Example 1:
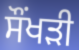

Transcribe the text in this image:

ਸੌਂਖੜੀ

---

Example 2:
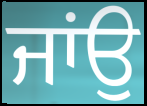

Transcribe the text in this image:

ਜਾਂਉ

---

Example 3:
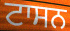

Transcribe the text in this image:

ਟਾਸਨ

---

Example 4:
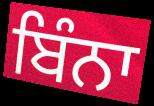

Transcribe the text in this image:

ਬਿੰਨਾ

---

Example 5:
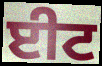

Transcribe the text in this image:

ਈਟ